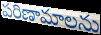
పరిణామాలను